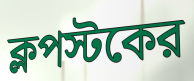
ক্লপস্টকের